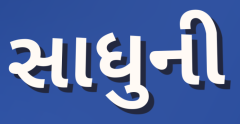
સાધુની